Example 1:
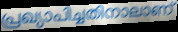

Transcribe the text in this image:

പ്രഖ്യാപിച്ചതിനാലാണ്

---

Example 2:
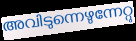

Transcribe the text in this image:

അവിടുന്നെഴുന്നേറ്റു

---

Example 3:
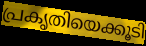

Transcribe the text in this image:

പ്രകൃതിയെക്കൂടി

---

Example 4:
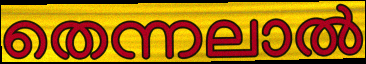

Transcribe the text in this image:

തെന്നലാൽ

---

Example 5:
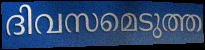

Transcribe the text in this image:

ദിവസമെടുത്ത